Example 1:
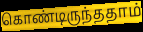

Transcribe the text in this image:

கொண்டிருந்ததாம்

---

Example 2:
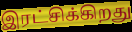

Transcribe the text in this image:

இரட்சிக்கிறது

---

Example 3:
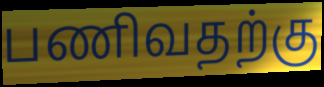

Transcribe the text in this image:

பணிவதற்கு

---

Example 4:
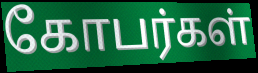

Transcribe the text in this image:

கோபர்கள்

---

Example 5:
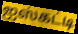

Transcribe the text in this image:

ஐஸ்கட்டி